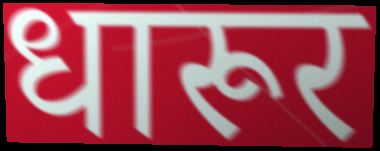
धारूर